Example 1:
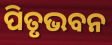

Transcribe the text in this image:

ପିତୃଭବନ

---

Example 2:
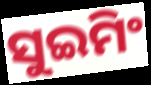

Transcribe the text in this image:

ସୁଇମିଂ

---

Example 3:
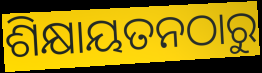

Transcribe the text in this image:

ଶିକ୍ଷାୟତନଠାରୁ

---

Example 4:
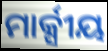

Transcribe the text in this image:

ମାର୍କ୍ସୀୟ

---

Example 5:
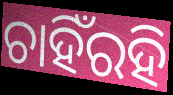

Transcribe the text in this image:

ଚାହିଁରହି